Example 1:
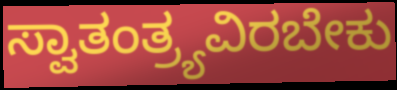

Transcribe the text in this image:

ಸ್ವಾತಂತ್ರ್ಯವಿರಬೇಕು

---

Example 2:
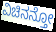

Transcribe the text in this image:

ವಿಚಿನನ್ತೋ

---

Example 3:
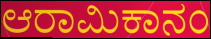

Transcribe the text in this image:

ಆರಾಮಿಕಾನಂ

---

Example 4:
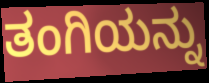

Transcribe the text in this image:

ತಂಗಿಯನ್ನು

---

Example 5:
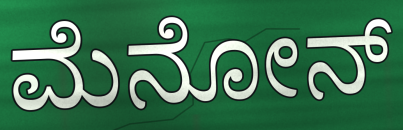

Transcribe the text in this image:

ಮೆನೋನ್